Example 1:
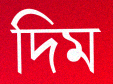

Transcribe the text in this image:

দিম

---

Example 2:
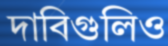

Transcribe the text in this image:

দাবিগুলিও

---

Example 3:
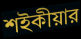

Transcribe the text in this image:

শইকীয়ার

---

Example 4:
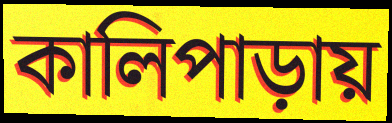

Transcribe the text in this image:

কালিপাড়ায়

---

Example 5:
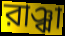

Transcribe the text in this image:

রাঞ্ঝা